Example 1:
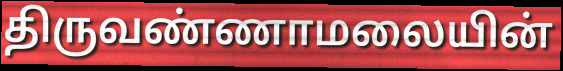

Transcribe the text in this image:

திருவண்ணாமலையின்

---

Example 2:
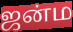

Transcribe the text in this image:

ஜன்ம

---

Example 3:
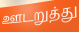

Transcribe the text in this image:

ஊடறுத்து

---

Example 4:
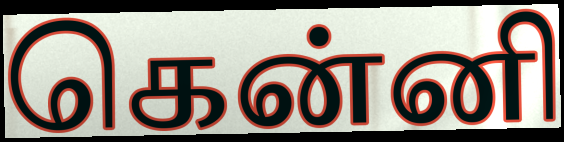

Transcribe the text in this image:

கென்னி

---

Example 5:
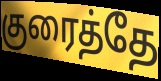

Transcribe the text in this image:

குரைத்தே